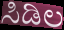
ಸಿಡಿಲ